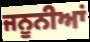
ਜਨੂਨੀਆਂ